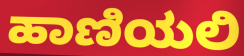
ಹಾಣಿಯಲಿ